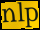
nlp